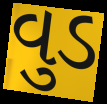
વુડ